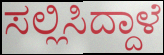
ಸಲ್ಲಿಸಿದ್ದಾಳೆ